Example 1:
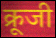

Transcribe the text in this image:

क्रूजी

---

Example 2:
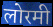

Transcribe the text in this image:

लोरमी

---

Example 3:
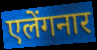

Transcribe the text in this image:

एलेंगनार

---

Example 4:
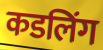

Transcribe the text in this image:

कडलिंग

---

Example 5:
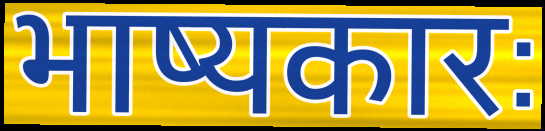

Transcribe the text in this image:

भाष्यकारः